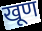
खूण